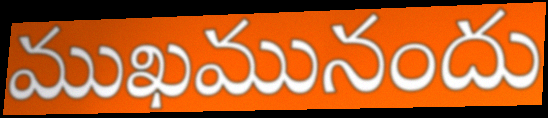
ముఖమునందు